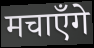
मचाएँगे